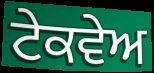
ਟੇਕਵੇਅ